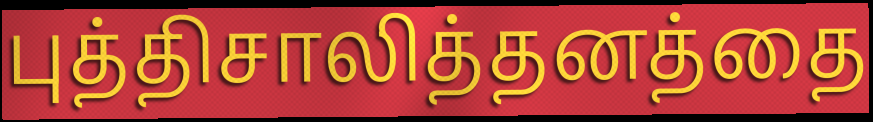
புத்திசாலித்தனத்தை